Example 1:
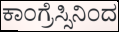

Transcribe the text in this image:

ಕಾಂಗ್ರೆಸ್ಸಿನಿಂದ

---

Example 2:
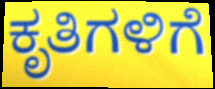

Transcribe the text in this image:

ಕೃತಿಗಳಿಗೆ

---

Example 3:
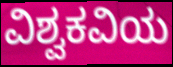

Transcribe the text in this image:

ವಿಶ್ವಕವಿಯ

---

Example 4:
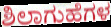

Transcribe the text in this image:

ಶಿಲಾಗುಹೆಗಳ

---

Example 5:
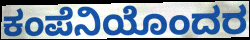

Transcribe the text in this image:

ಕಂಪೆನಿಯೊಂದರ